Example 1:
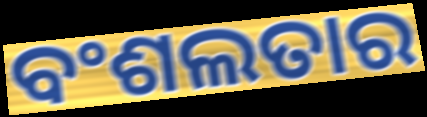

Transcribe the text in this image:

ବଂଶଲତାର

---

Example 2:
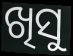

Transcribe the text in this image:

ଖିସୁ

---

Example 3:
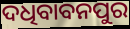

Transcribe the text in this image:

ଦଧିବାବନପୁର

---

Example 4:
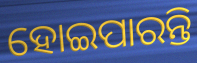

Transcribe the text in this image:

ହୋଇପାରନ୍ତି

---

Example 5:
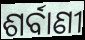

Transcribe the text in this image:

ଶର୍ବାଣୀ